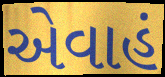
એવાહં